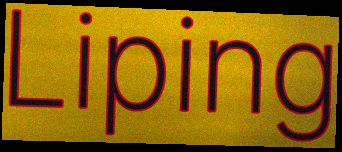
Liping